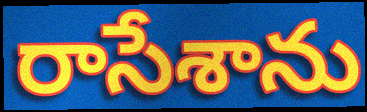
రాసేశాను